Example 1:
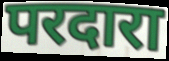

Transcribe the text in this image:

परदारा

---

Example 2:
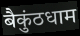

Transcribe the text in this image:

बैकुंठधाम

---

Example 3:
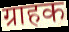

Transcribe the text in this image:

ग्राहक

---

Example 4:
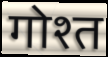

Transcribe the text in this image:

गोश्त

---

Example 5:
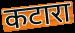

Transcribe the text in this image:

कटारा